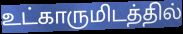
உட்காருமிடத்தில்